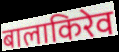
बालाकिरेव